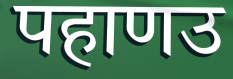
पहाणउ